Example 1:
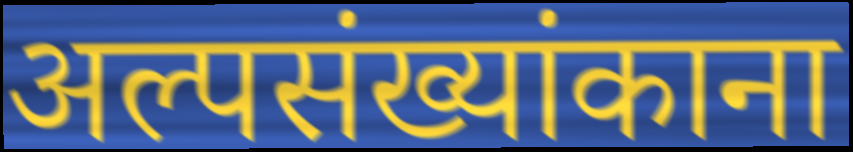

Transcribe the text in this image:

अल्पसंख्यांकाना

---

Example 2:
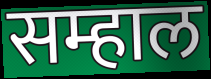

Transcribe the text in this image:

सम्हाल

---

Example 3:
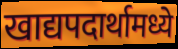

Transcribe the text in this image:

खाद्यपदार्थामध्ये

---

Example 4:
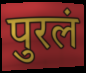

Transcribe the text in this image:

पुरलं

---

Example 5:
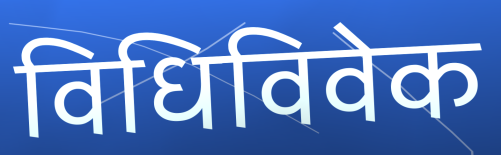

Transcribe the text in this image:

विधिविवेक